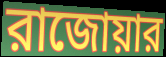
রাজোয়ার